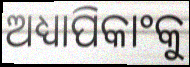
ଅଧ୍ୟାପିକାଂକୁ